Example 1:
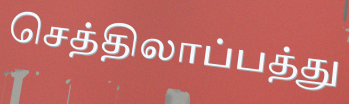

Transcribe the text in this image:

செத்திலாப்பத்து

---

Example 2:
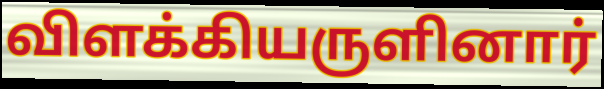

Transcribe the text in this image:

விளக்கியருளினார்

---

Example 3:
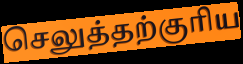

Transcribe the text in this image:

செலுத்தற்குரிய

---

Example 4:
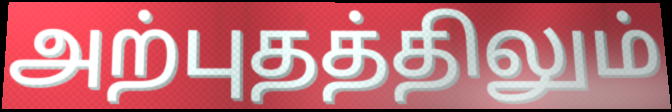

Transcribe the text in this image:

அற்புதத்திலும்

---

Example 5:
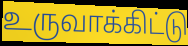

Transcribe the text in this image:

உருவாக்கிட்டு